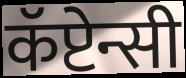
कॅप्टेन्सी